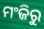
ମଂଜିରୁ